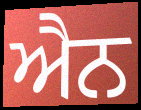
ਐਨ